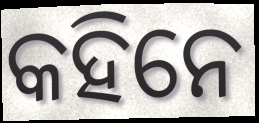
କହିନେ